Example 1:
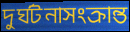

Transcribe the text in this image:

দুর্ঘটনাসংক্রান্ত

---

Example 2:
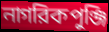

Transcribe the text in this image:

নাগরিকপুঞ্জি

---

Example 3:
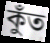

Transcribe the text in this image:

কুঁত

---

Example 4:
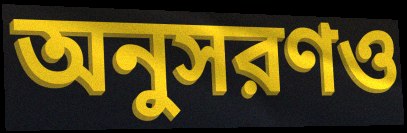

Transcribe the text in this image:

অনুসরণও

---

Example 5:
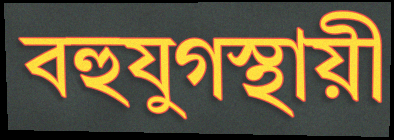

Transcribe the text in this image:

বহুযুগস্থায়ী